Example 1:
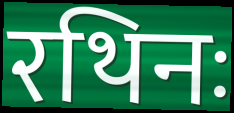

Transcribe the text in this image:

रथिनः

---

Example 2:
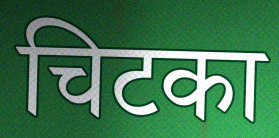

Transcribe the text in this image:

चिटका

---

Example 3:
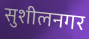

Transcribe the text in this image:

सुशीलनगर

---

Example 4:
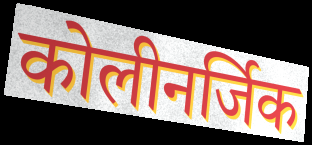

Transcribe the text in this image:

कोलीनर्जिक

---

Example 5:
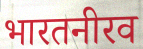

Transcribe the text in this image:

भारतनीरव